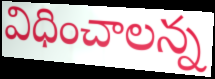
విధించాలన్న